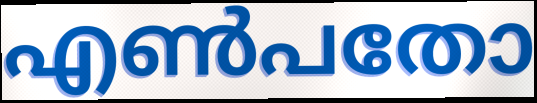
എൺപതോ